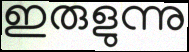
ഇരുളുന്നു